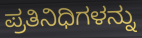
ಪ್ರತಿನಿಧಿಗಳನ್ನು